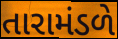
તારામંડળે